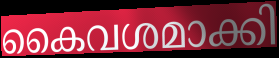
കൈവശമാക്കി